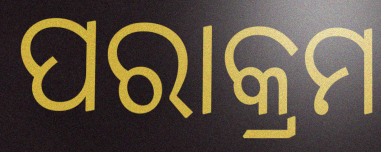
ପରାକ୍ରମ